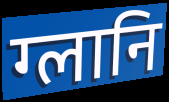
ग्लानि